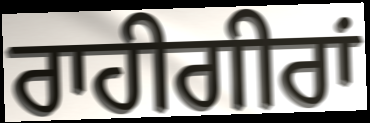
ਰਾਹੀਗੀਰਾਂ